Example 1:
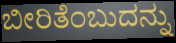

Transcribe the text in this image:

ಬೀರಿತೆಂಬುದನ್ನು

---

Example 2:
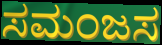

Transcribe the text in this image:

ಸಮಂಜಸ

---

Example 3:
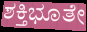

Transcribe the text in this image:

ಶಕ್ತಿಭೂತೇ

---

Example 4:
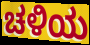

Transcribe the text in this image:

ಚಳಿಯ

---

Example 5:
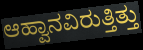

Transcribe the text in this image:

ಆಹ್ವಾನವಿರುತ್ತಿತ್ತು